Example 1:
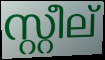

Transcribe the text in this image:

സ്റ്റീല്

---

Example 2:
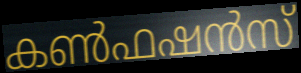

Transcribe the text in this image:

കൺഫഷൻസ്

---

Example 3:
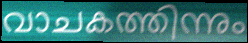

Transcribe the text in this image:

വാചകത്തിന്നും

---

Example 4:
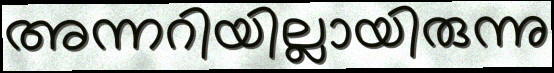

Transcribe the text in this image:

അന്നറിയില്ലായിരുന്നു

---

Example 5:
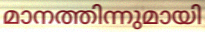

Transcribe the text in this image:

മാനത്തിന്നുമായി